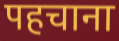
पहचाना